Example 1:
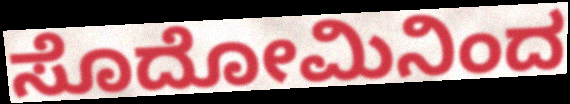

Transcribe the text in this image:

ಸೊದೋಮಿನಿಂದ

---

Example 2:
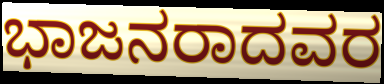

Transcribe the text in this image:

ಭಾಜನರಾದವರ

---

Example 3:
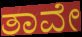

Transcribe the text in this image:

ತಾವೇ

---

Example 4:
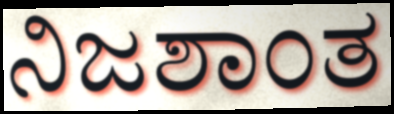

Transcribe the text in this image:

ನಿಜಶಾಂತ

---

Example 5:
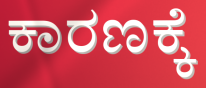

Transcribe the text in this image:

ಕಾರಣಕ್ಕೆ